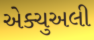
એક્ચુઅલી